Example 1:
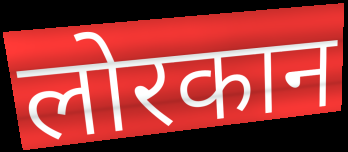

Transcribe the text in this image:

लोरकान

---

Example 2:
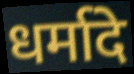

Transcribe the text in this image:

धर्मादे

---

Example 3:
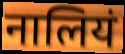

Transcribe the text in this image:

नालियं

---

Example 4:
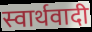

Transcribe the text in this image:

स्वार्थवादी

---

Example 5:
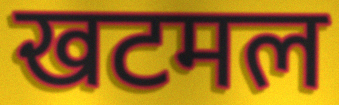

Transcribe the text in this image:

खटमल